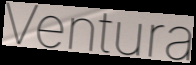
Ventura